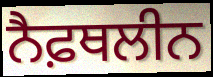
ਨੈਫ਼ਥਲੀਨ